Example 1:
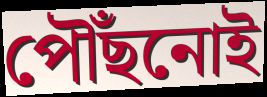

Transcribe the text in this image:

পৌঁছনোই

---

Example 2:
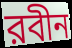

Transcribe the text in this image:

রবীন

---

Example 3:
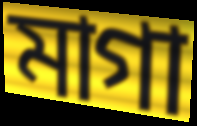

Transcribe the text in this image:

মাগা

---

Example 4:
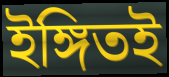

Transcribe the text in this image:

ইঙ্গিতই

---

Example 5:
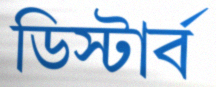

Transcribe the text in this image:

ডিস্টার্ব